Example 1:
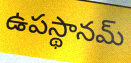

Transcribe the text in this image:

ఉపస్థానమ్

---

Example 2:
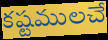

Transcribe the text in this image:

కష్టములచే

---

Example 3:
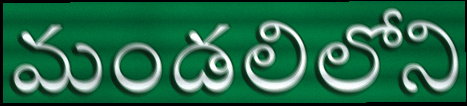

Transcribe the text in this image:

మండలిలోని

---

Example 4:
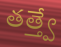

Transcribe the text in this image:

తత్త్వే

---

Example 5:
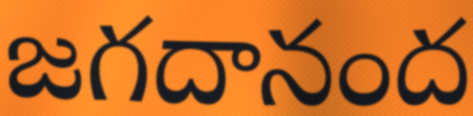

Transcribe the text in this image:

జగదానంద